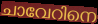
ചാവേറിനെ